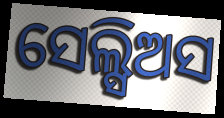
ସେଲ୍ସିଅସ